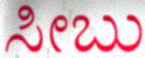
ಸೀಬು